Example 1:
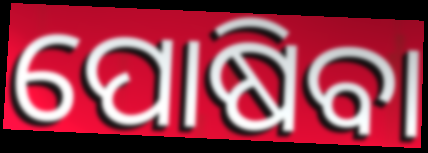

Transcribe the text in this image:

ପୋଷିବା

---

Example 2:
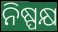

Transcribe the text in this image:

ନିଷ୍ପକ୍ଷ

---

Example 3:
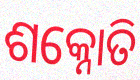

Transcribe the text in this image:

ଶକ୍ନୋତି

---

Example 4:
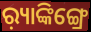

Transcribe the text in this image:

ର଼୍ୟାଙ୍କିଙ୍ଗ୍ରେ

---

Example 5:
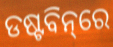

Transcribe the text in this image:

ଡଷ୍ଟବିନ୍‌ରେ